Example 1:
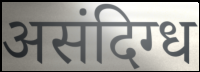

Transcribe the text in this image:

असंदिग्ध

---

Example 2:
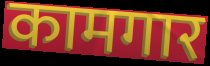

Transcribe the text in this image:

कामगार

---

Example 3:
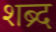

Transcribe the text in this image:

शब्र्द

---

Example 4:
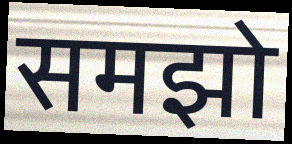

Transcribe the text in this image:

समझो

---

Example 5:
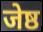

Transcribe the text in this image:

जेष्ठ